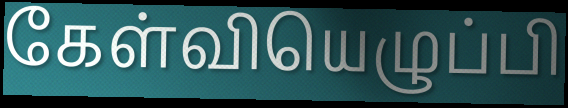
கேள்வியெழுப்பி